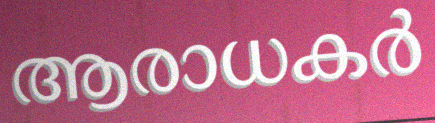
ആരാധകർ